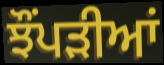
ਝੌਂਪੜੀਆਂ